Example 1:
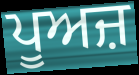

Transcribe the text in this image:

ਪੂਅਜ਼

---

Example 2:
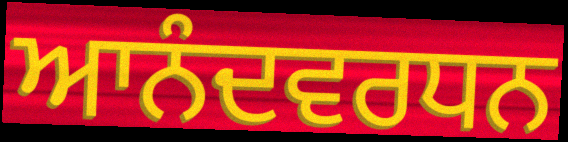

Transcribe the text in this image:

ਆਨੰਦਵਰਧਨ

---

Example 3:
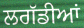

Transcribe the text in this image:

ਲਗੱਡੀਆਂ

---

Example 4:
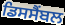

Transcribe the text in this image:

ਡਿਸਸੈਂਬਲ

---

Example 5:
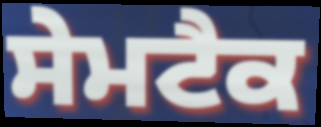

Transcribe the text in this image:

ਸੇਮਟੈਕ